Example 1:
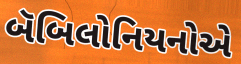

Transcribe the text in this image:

બૅબિલોનિયનોએ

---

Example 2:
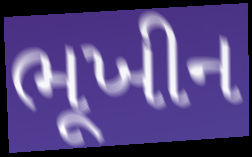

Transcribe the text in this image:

ભૂખીન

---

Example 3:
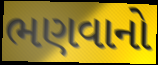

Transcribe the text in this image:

ભણવાનો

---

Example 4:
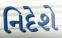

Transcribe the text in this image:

નિદેશે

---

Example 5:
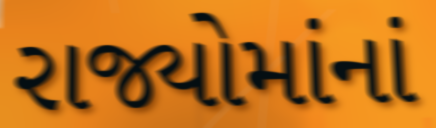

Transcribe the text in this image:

રાજ્યોમાંનાં